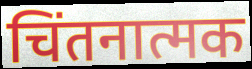
चिंतनात्मक